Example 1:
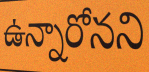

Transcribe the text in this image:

ఉన్నారోనని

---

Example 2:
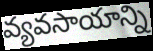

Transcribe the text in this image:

వ్యవసాయాన్ని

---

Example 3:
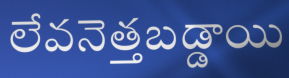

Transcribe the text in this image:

లేవనెత్తబడ్డాయి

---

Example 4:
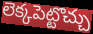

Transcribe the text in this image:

లెక్కపెట్టొచ్చు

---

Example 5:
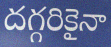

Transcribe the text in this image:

దగ్గరికైనా